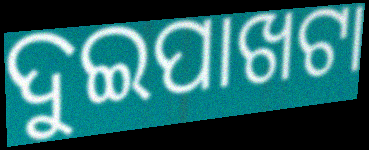
ଦୁଇପାଖଟା